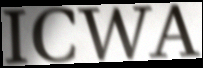
ICWA